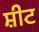
ਸ਼ੀਟ